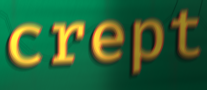
crept